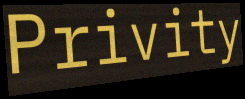
Privity